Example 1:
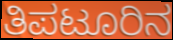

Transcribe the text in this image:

ತಿಪಟೂರಿನ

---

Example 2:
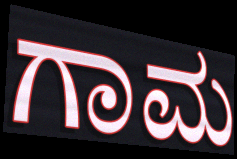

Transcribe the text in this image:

ಗಾಮ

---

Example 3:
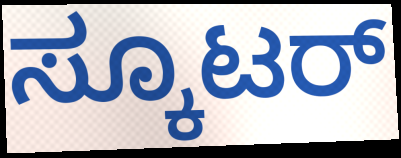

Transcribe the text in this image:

ಸ್ಕೂಟರ್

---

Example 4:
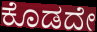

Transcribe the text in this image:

ಕೊಡದೇ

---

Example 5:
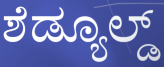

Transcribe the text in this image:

ಶೆಡ್ಯೂಲ್ಡ್